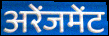
अरेंजमेंट